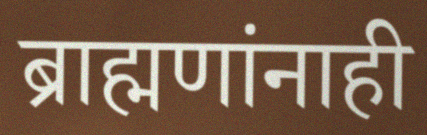
ब्राह्मणांनाही